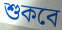
শুকবে